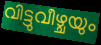
വിട്ടുവീഴ്ചയും